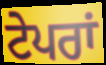
ਟੇਪਰਾਂ